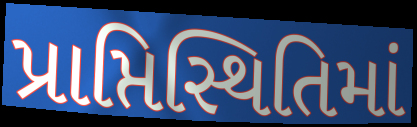
પ્રાપ્તિસ્થિતિમાં